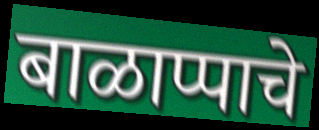
बाळाप्पाचे